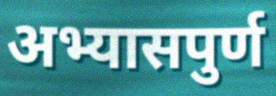
अभ्यासपुर्ण